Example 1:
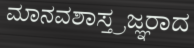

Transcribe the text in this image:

ಮಾನವಶಾಸ್ತ್ರಜ್ಞರಾದ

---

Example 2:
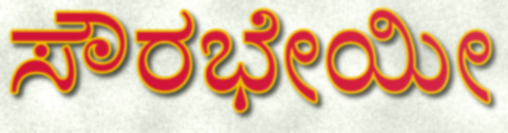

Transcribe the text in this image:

ಸೌರಭೇಯೀ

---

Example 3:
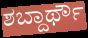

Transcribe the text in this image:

ಶಬ್ದಾರ್ಥೌ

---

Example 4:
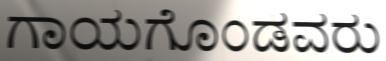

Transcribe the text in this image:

ಗಾಯಗೊಂಡವರು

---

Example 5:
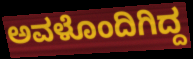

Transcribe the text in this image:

ಅವಳೊಂದಿಗಿದ್ದ